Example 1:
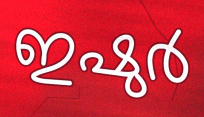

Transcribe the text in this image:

ഇഷുർ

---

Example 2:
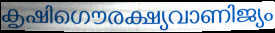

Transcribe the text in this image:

കൃഷിഗൌരക്ഷ്യവാണിജ്യം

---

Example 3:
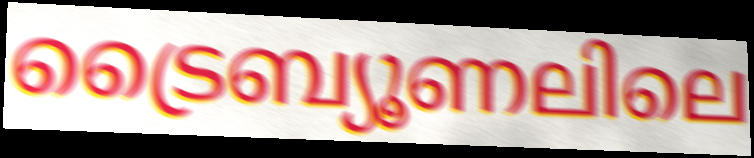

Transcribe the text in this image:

ട്രൈബ്യൂണലിലെ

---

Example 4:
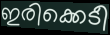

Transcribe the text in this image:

ഇരിക്കെടീ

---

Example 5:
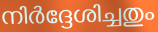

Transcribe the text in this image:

നിർദ്ദേശിച്ചതും